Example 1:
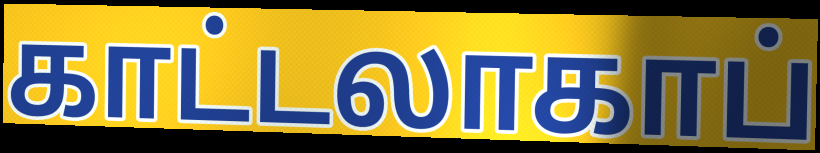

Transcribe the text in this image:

காட்டலாகாப்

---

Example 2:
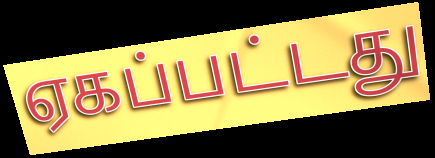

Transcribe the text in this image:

ஏகப்பட்டது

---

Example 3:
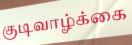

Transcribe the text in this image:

குடிவாழ்க்கை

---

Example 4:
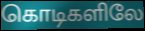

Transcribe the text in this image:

கொடிகளிலே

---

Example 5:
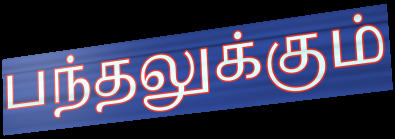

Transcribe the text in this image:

பந்தலுக்கும்